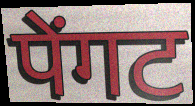
पेंगट